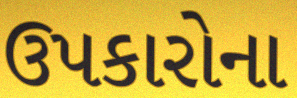
ઉપકારોના